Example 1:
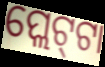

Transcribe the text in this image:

ପ୍ଲେଟ୍‍ଟା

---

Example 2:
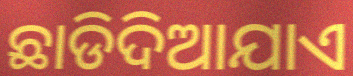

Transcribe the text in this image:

ଛାଡିଦିଆଯାଏ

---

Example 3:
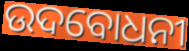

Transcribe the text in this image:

ଉଦବୋଧନୀ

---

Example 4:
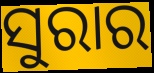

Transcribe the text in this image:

ସୁରାର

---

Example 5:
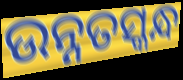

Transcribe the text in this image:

ଉନ୍ନତସ୍କନ୍ଧ